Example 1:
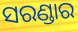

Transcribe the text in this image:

ସରଣ୍ଡାର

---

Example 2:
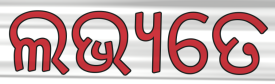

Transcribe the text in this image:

ଲଭ୍ୟତେ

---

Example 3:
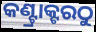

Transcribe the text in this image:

କଣ୍ଟ୍ରାକ୍ଟରଠୁ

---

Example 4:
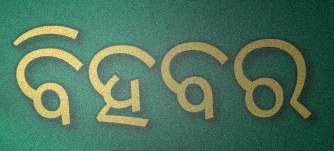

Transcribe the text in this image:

ବିହବର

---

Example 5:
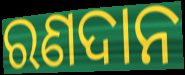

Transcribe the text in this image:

ରଣଦାନ